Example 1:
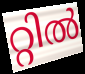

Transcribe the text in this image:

റ്റിൽ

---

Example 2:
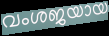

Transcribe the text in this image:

വംശജയായ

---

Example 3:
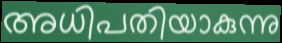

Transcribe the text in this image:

അധിപതിയാകുന്നു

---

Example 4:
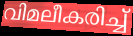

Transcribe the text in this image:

വിമലീകരിച്ച്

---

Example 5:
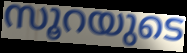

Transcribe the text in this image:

സൂറയുടെ